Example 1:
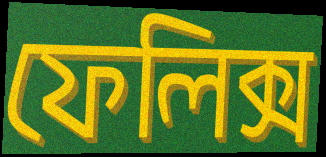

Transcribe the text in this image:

ফেলিক্স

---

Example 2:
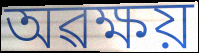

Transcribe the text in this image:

অৱক্ষয়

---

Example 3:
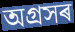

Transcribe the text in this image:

অগ্ৰসৰ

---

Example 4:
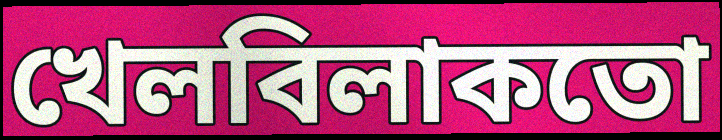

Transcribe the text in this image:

খেলবিলাকতো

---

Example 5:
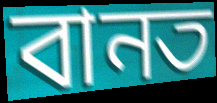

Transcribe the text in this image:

বানত